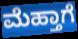
ಮೆಹ್ತಾಗೆ